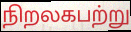
நிறலகபற்று